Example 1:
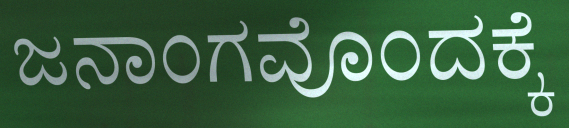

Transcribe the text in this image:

ಜನಾಂಗವೊಂದಕ್ಕೆ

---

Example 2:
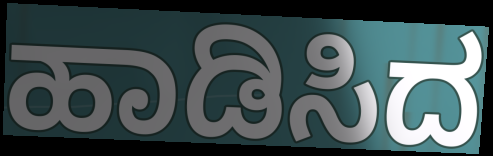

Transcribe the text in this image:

ಹಾಡಿಸಿದ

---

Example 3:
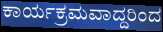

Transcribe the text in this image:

ಕಾರ್ಯಕ್ರಮವಾದ್ದರಿಂದ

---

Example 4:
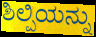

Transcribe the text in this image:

ಶಿಲ್ಪಿಯನ್ನು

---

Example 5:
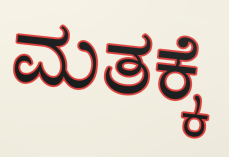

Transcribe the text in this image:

ಮತಕ್ಕೆ